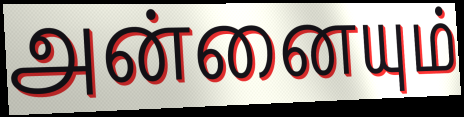
அன்னையும்